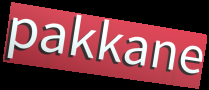
pakkane